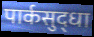
पार्कसुद्धा